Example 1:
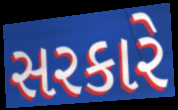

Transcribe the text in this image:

સરકારે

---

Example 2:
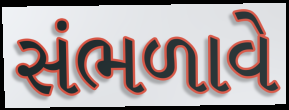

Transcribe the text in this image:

સંભળાવે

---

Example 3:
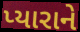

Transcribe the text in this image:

પ્યારાને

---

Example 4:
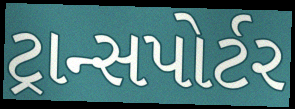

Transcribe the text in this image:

ટ્રાન્સપોર્ટર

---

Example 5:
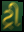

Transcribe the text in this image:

ટ્રી